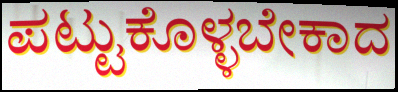
ಪಟ್ಟುಕೊಳ್ಳಬೇಕಾದ